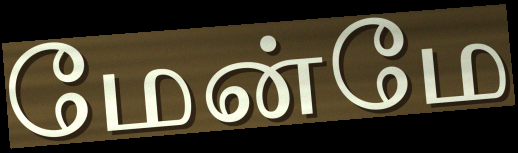
மேன்மே